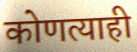
कोणत्याही